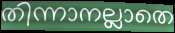
തിന്നാനല്ലാതെ